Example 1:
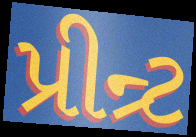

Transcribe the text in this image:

પ્રીન્ર્ટ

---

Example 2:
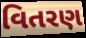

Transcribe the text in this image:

વિતરણ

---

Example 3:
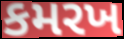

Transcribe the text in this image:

કમરખ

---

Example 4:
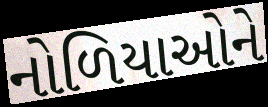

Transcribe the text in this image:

નોળિયાઓને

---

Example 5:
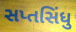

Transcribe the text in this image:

સપ્તસિંધુ